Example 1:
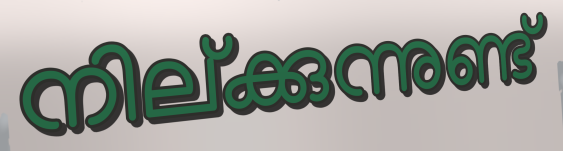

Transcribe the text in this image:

നില്ക്കുന്നുണ്ട്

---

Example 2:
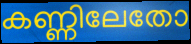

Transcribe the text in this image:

കണ്ണിലേതോ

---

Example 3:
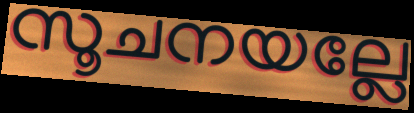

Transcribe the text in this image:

സൂചനയല്ലേ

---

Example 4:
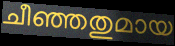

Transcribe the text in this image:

ചീഞ്ഞതുമായ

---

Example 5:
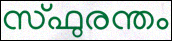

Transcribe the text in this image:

സ്ഫുരന്തം